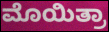
ಮೊಯಿತ್ರಾ